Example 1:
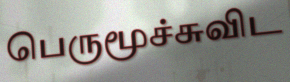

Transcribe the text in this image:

பெருமூச்சுவிட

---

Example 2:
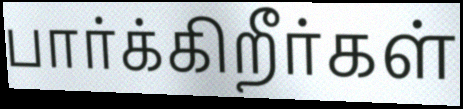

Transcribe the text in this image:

பார்க்கிறீர்கள்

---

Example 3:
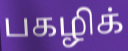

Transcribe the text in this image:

பகழிக்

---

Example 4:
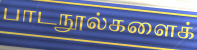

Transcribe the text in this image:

பாடநூல்களைக்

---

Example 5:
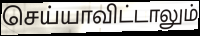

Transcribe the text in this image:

செய்யாவிட்டாலும்